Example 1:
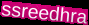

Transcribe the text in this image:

ssreedhra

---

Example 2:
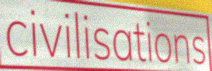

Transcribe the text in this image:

civilisations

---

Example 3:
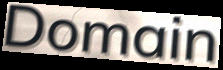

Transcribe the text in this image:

Domain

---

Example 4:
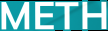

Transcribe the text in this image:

METH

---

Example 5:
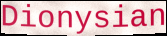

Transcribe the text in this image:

Dionysian